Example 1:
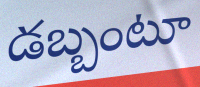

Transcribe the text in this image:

డబ్బంటూ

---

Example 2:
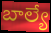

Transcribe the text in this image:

బాల్యే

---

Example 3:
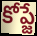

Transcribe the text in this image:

కోప్జే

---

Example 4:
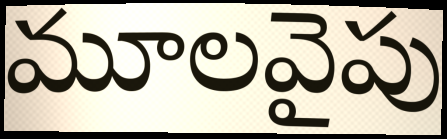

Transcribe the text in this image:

మూలవైపు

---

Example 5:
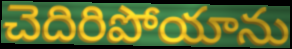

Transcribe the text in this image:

చెదిరిపోయాను